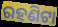
ରହଣିଟା